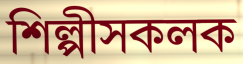
শিল্পীসকলক